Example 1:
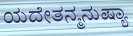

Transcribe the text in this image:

ಯದೇತನ್ಮನುಷ್ಯಾ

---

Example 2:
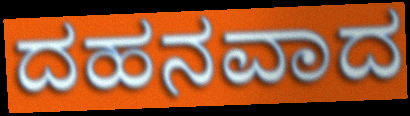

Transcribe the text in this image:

ದಹನವಾದ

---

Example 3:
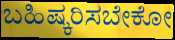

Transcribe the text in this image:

ಬಹಿಷ್ಕರಿಸಬೇಕೋ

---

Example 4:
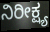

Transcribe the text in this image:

ನಿರೀಕ್ಷ್ಯ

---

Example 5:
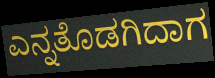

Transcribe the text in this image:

ಎನ್ನತೊಡಗಿದಾಗ